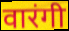
वारंगी